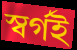
স্বৰ্গই